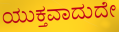
ಯುಕ್ತವಾದುದೇ